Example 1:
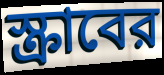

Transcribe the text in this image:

স্ক্রাবের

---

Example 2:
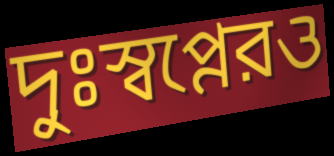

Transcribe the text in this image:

দুঃস্বপ্নেরও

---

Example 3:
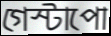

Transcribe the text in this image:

গেস্টাপো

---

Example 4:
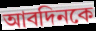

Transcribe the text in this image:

আবদিনকে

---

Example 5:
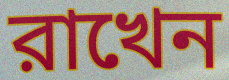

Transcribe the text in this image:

রাখেন